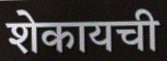
शेकायची